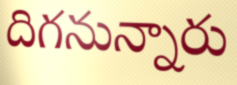
దిగనున్నారు